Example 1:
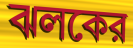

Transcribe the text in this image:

ঝলকের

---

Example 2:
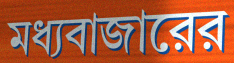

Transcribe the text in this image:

মধ্যবাজারের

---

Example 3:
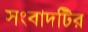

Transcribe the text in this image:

সংবাদটির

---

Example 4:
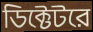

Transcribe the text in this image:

ডিক্টেটরে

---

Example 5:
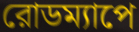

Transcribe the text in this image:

রোডম্যাপে